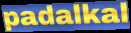
padalkal